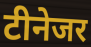
टीनेजर